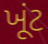
ખૂંટ